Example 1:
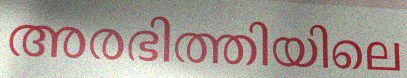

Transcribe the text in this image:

അരഭിത്തിയിലെ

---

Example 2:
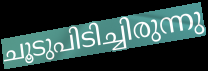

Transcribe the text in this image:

ചൂടുപിടിച്ചിരുന്നു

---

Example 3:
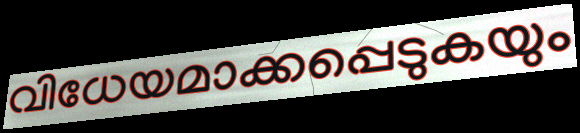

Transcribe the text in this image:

വിധേയമാക്കപ്പെടുകയും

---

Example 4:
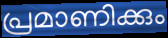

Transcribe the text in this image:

പ്രമാണിക്കും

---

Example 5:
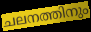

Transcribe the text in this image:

ചലനത്തിനും